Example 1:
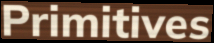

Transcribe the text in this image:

Primitives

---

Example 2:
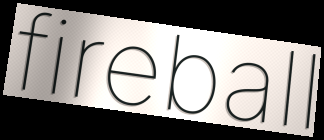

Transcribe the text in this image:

fireball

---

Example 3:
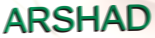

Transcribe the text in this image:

ARSHAD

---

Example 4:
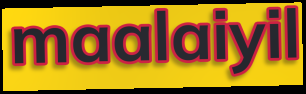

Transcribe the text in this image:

maalaiyil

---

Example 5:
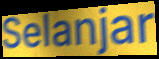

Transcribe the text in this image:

Selanjar